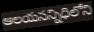
ఆలయసన్నిధిలోని